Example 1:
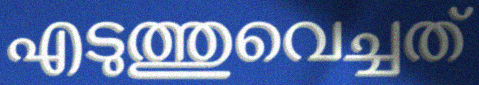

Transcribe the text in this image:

എടുത്തുവെച്ചത്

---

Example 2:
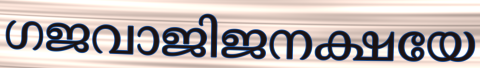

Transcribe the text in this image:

ഗജവാജിജനക്ഷയേ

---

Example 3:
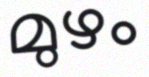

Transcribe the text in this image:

മുഴം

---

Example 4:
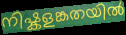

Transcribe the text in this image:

നിഷ്കളങ്കതയിൽ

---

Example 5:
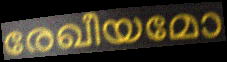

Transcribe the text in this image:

രേഖീയമോ